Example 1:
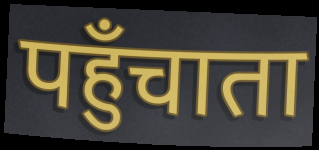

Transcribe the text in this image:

पहुँचाता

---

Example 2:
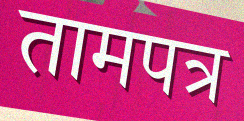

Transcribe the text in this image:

तामपत्र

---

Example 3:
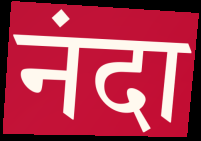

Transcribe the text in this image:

नंदा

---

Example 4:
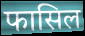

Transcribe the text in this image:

फासिल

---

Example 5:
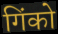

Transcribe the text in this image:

गिंको